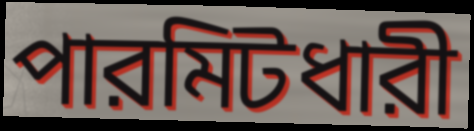
পারমিটধারী